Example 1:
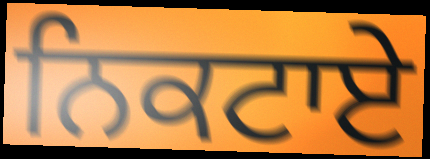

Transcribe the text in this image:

ਨਿਕਟਾਏ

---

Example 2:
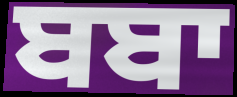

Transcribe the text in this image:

ਬਬਾ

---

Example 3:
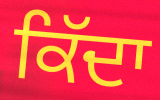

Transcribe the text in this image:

ਕਿੱਦਾ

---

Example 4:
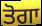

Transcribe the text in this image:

ਤੋਗਾ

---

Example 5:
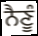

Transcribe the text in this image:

ਨੈਣੂੰ